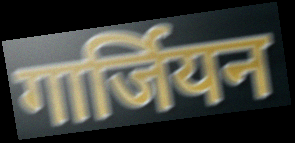
गार्जियन